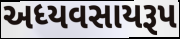
અધ્યવસાયરૂપ